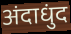
अंदाधुंद